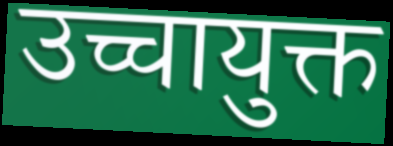
उच्चायुक्त